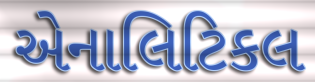
એનાલિટિકલ